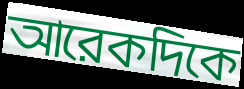
আরেকদিকে